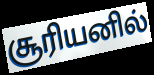
சூரியனில்